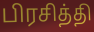
பிரசித்தி